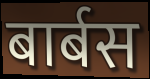
बार्बस